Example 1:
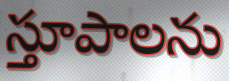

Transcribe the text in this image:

స్తూపాలను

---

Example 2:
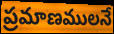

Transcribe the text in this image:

ప్రమాణములనే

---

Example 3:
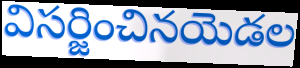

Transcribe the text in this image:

విసర్జించినయెడల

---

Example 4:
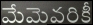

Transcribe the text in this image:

మేమెవరికీ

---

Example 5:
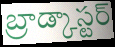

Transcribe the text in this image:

బ్రాడ్కాస్టర్